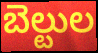
బెల్టుల